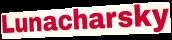
Lunacharsky